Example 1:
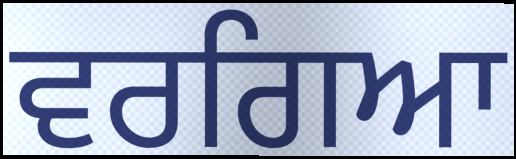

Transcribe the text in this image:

ਵਰਗਿਆ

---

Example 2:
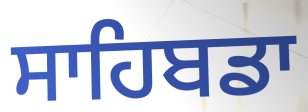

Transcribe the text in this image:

ਸਾਹਿਬਡਾ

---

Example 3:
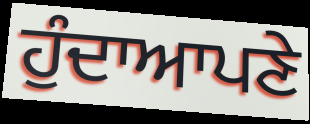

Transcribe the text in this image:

ਹੁੰਦਾਆਪਣੇ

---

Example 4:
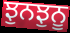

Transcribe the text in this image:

ਝੁਨਝੁਨੂ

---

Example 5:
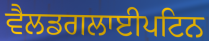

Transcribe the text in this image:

ਵੈਲਡਗਲਾਈਪਟਿਨ